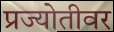
प्रज्योतीवर